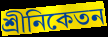
শ্রীনিকেতন